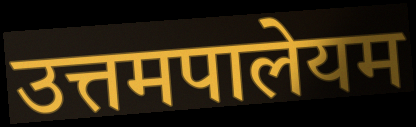
उत्तमपालेयम